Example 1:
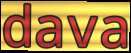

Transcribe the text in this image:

dava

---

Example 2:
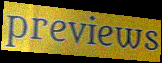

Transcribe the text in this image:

previews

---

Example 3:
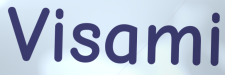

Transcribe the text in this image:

Visami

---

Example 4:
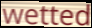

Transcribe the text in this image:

wetted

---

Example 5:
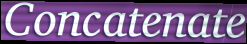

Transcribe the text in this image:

Concatenate